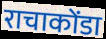
राचाकोंडा